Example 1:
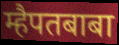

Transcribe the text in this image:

म्हैपतबाबा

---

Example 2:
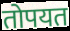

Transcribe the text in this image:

तोपयत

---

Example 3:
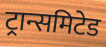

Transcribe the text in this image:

ट्रान्समिटेड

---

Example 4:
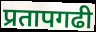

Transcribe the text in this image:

प्रतापगढी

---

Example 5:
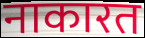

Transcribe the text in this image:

नाकारत